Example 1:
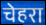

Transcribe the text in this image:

चेहरा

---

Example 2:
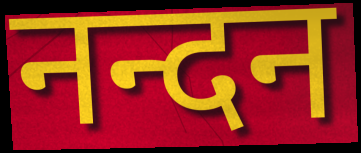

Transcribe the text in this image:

नन्दन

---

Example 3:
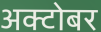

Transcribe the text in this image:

अक्टोबर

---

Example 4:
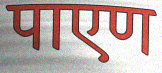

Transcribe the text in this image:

पाएण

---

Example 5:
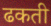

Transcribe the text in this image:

ढकती